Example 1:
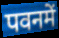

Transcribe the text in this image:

पवनमें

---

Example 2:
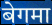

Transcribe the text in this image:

बेगमा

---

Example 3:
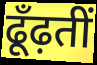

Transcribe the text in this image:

ढूँढ़तीं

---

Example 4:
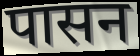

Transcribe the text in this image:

पासन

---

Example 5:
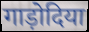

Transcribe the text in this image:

गाड़ोदिया